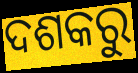
ଦଶକରୁ